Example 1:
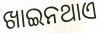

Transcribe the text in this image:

ଖାଇନଥାଏ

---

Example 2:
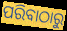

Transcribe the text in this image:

ପରିବାଠାରୁ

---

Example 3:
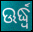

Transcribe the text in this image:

ଊର୍ଦ୍ଧ୍ବ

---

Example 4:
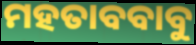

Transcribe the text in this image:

ମହତାବବାବୁ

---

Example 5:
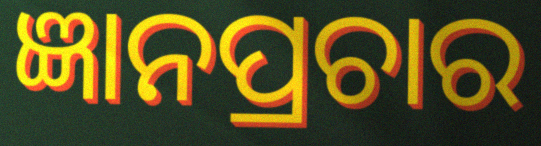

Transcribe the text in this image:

ଜ୍ଞାନପ୍ରଚାର